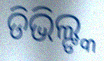
ଡିଭିଲ୍ଙ୍କ